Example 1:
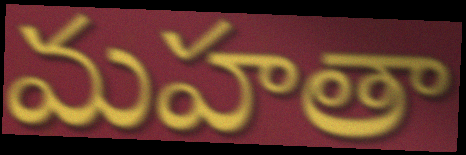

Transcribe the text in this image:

మహతా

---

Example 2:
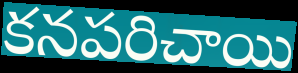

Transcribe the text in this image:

కనపరిచాయి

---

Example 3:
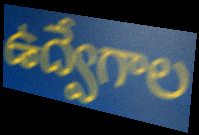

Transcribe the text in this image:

ఉద్వేగాల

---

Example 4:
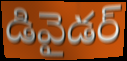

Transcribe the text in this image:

డివైడర్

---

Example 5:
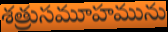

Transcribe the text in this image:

శత్రుసమూహమును